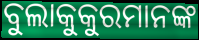
ବୁଲାକୁକୁରମାନଙ୍କ